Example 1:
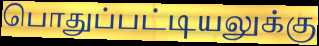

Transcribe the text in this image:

பொதுப்பட்டியலுக்கு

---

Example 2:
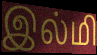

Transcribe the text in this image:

இல்மி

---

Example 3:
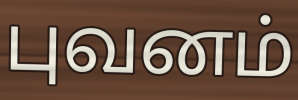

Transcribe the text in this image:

புவனம்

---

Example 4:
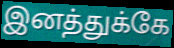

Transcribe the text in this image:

இனத்துக்கே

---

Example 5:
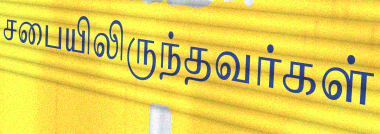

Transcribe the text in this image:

சபையிலிருந்தவர்கள்